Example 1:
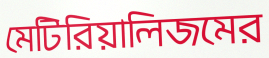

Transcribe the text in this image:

মেটিরিয়ালিজমের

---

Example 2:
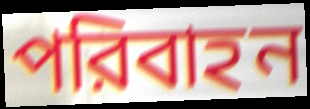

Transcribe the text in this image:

পরিবাহন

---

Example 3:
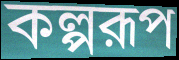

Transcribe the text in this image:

কল্পরূপ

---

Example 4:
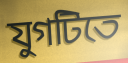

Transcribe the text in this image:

যুগটিতে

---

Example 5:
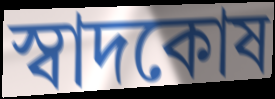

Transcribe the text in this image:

স্বাদকোষ